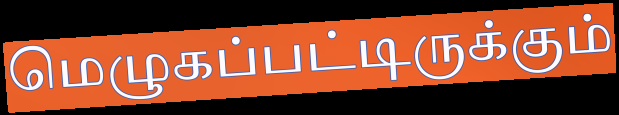
மெழுகப்பட்டிருக்கும்